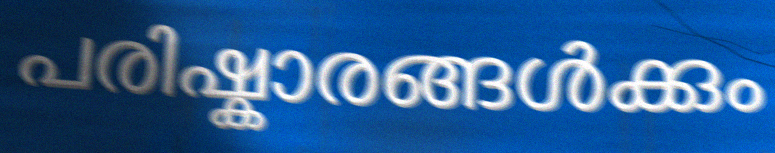
പരിഷ്കാരങ്ങൾക്കും